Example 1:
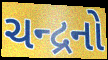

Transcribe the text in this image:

ચન્દ્રનો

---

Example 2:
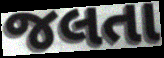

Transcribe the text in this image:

જલતા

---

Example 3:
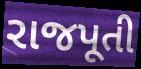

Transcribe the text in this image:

રાજપૂતી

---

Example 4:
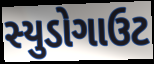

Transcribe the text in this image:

સ્યુડોગાઉટ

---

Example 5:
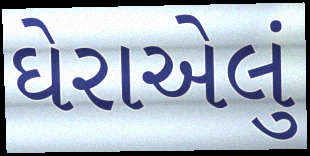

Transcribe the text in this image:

ઘેરાએલું